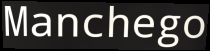
Manchego